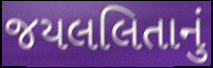
જયલલિતાનું